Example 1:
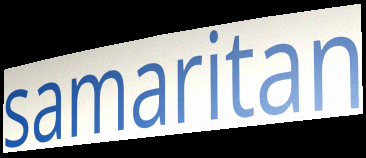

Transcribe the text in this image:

samaritan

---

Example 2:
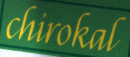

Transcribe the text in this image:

chirokal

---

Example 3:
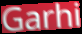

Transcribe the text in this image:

Garhi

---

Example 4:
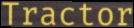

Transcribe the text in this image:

Tractor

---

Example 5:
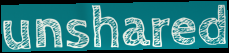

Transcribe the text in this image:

unshared